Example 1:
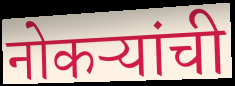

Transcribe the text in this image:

नोकऱ्यांची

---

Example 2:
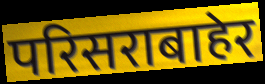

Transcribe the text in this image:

परिसराबाहेर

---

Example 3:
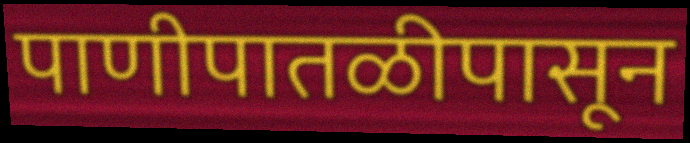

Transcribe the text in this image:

पाणीपातळीपासून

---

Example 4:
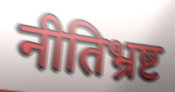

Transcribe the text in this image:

नीतिभ्रष्ट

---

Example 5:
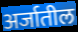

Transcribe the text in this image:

अर्जातील